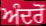
ਅੰਦਰੋਂ